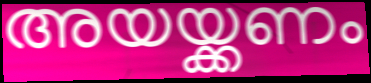
അയയ്ക്കണം